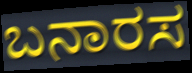
ಬನಾರಸ